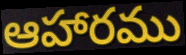
ఆహారము